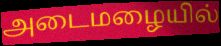
அடைமழையில்